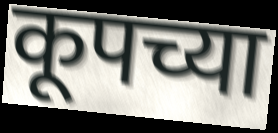
कूपच्या